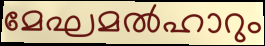
മേഘമൽഹാറും